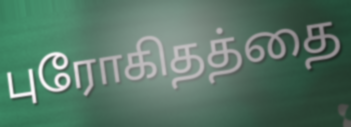
புரோகிதத்தை